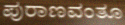
ಪುರಾಣವಂತೂ